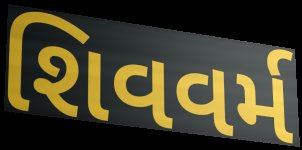
શિવવર્મ